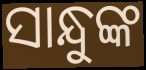
ସାନ୍ଧୁଙ୍କ